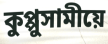
কুপ্পুসামীয়ে